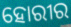
ହୋରୀର